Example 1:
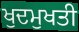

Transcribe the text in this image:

ਖੁਦਮੁਖਤੀ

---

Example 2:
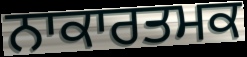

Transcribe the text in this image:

ਨਾਕਾਰਤਮਕ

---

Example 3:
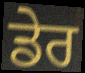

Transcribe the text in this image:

ਡੇਰ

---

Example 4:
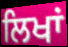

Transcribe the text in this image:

ਲਿਖਾਂ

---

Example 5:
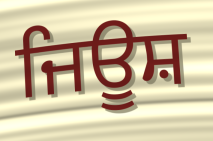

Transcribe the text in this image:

ਜਿਊਸ਼